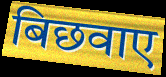
बिछवाए